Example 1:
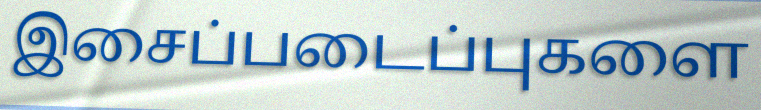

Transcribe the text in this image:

இசைப்படைப்புகளை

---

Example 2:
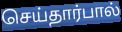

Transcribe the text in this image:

செய்தார்பால்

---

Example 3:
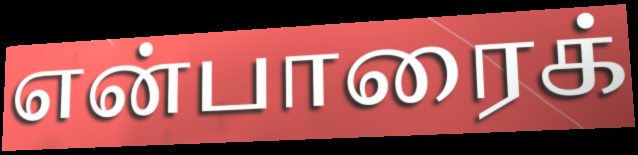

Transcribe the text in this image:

என்பாரைக்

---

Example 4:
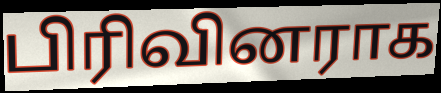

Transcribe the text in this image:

பிரிவினராக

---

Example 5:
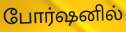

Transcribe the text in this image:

போர்ஷனில்